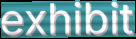
exhibit